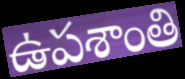
ఉపశాంతి